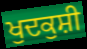
ਖੁਦਕੁਸ਼ੀ